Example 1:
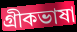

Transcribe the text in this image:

গ্রীকভাষা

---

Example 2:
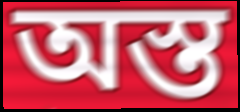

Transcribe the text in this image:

অস্ত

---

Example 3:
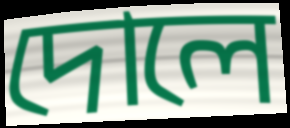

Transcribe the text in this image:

দোলে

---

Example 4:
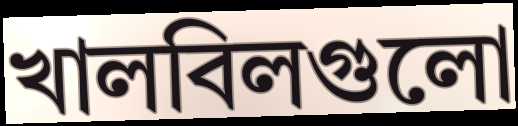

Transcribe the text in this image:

খালবিলগুলো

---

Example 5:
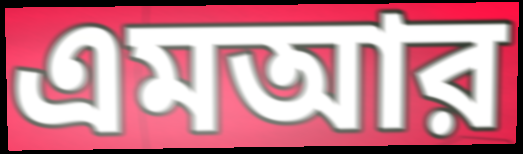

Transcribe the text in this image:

এমআর